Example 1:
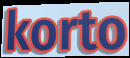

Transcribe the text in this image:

korto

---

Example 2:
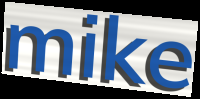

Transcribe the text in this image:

mike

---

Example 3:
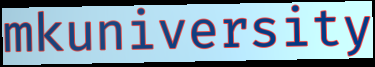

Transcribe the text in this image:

mkuniversity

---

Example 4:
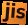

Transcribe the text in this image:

jis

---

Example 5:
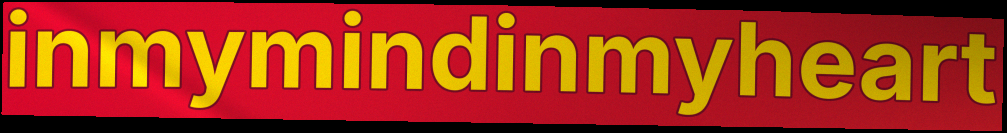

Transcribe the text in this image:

inmymindinmyheart